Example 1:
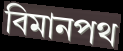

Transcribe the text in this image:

বিমানপথ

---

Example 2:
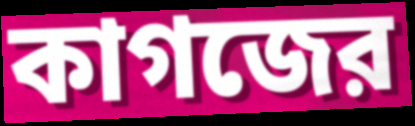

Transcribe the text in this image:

কাগজের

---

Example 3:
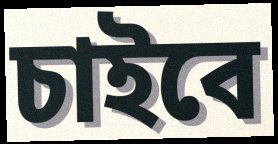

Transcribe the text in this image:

চাইবে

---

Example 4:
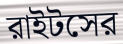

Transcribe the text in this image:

রাইটসের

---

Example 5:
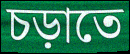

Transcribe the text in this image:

চড়াতে